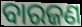
ବାରଜଣ